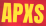
APXS